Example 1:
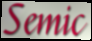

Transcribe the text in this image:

Semic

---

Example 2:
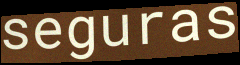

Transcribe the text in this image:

seguras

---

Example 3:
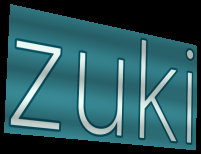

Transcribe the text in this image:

zuki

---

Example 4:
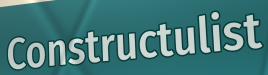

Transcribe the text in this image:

Constructulist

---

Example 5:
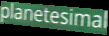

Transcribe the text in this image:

planetesimal